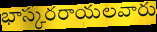
భాస్కరరాయలవారు